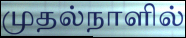
முதல்நாளில்